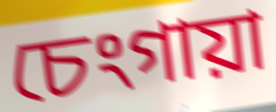
চেংগায়া